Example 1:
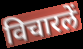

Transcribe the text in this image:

विचारलें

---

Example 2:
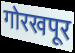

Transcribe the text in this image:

गोरखपूर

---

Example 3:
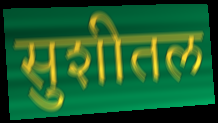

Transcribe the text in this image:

सुशीतल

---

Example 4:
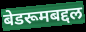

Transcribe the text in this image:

बेडरूमबद्दल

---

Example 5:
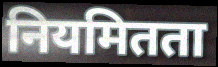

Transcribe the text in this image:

नियमितता